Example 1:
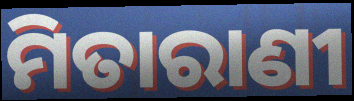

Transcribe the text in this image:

ମିତାରାଣୀ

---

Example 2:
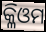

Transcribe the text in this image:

କ୍ଳିଓମ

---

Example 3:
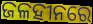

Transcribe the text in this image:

ଜଳହୀନରେ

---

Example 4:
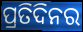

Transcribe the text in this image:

ପ୍ରତିଦିନର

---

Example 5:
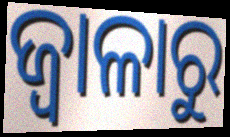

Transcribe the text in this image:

ଜ୍ଵାଳାରୁ